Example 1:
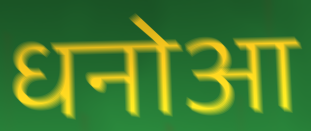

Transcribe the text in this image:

धनोआ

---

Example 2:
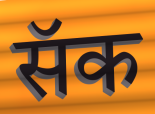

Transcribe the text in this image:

सॅक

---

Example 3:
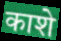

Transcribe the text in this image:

काशे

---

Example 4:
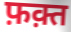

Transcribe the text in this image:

फ़क़्त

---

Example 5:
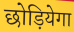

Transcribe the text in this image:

छोड़ियेगा